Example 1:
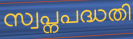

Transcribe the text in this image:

സ്വപ്നപദ്ധതി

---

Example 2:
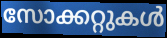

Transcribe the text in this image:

സോക്കറ്റുകൾ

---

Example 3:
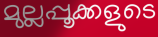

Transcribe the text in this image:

മുല്ലപ്പൂക്കളുടെ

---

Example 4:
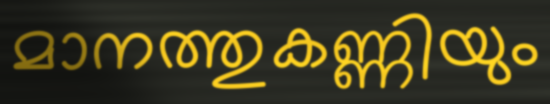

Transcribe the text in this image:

മാനത്തുകണ്ണിയും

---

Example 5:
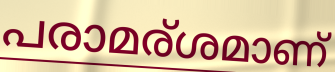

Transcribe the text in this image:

പരാമര്ശമാണ്